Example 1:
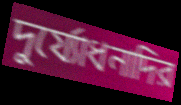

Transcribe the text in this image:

দুর্য্যোধনাদির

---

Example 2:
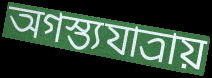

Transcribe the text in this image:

অগস্ত্যযাত্রায়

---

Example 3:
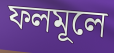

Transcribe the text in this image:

ফলমূলে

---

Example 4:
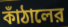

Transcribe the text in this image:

কাঁঠালের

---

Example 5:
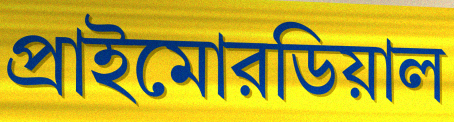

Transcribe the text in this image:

প্রাইমোরডিয়াল